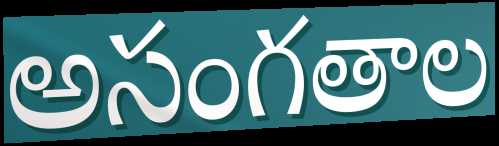
అసంగతాల